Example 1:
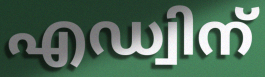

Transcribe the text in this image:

എഡ്വിന്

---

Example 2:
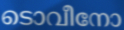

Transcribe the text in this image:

ടൊവീനോ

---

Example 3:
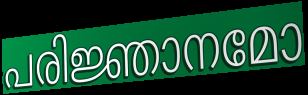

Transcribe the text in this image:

പരിജ്ഞാനമോ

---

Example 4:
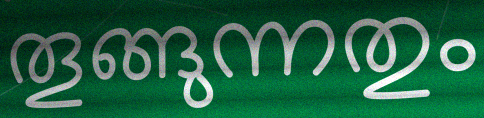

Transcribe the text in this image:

തൂങ്ങുന്നതും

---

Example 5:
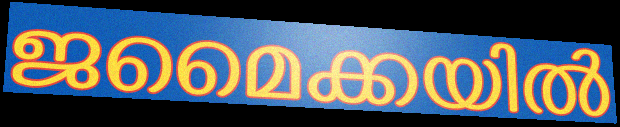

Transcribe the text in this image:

ജമൈക്കയിൽ